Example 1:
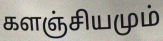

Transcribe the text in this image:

களஞ்சியமும்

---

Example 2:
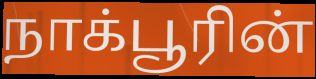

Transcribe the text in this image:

நாக்பூரின்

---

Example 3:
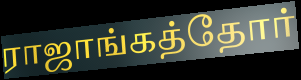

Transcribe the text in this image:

ராஜாங்கத்தோர்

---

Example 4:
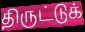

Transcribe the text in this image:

திருட்டுக்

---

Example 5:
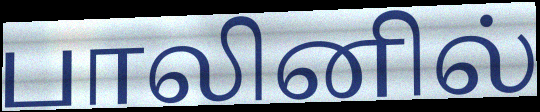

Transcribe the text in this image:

பாலினில்